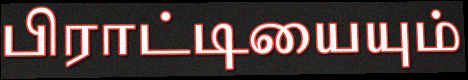
பிராட்டியையும்